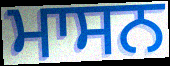
ਮਾਸਨ